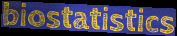
biostatistics